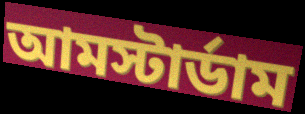
আমস্টার্ডাম